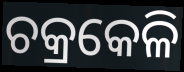
ଚକ୍ରକେଳି